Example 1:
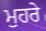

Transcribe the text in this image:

ਮੁਹਰੇ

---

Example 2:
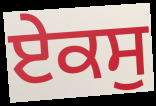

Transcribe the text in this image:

ਏਕਸੁ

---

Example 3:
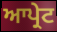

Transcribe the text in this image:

ਆਪ੍ਰੇਟ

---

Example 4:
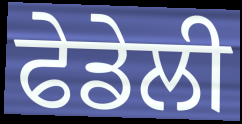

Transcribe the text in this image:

ਫੇਡੇਲੀ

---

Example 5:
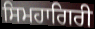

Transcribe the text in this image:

ਸਿਮਹਾਗਿਰੀ